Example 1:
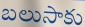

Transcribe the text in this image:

బలుసాకు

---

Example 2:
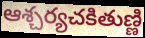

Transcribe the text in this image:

ఆశ్చర్యచకితుణ్ణి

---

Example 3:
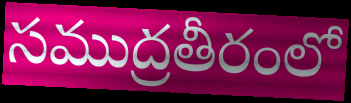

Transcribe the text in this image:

సముద్రతీరంలో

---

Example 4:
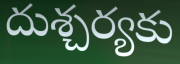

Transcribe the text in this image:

దుశ్చర్యకు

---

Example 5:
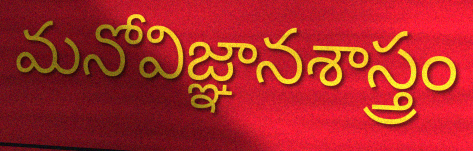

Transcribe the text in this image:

మనోవిజ్ఞానశాస్త్రం